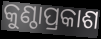
କୁଣ୍ଠାପ୍ରକାଶ